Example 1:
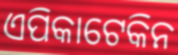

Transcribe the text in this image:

ଏପିକାଟେକିନ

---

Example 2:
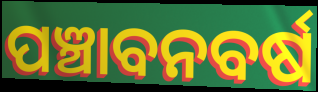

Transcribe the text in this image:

ପଞ୍ଚାବନବର୍ଷ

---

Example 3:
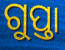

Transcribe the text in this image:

ଗୁପ୍ତା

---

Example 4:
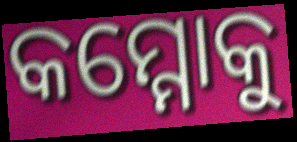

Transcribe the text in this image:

କମ୍ମୋକୁ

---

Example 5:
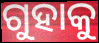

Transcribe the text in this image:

ଗୁହାକୁ